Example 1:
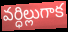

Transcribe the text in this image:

వర్ధిల్లుగాక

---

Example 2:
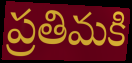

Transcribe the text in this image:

ప్రతిమకి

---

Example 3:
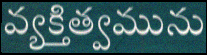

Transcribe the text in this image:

వ్యక్తిత్వమును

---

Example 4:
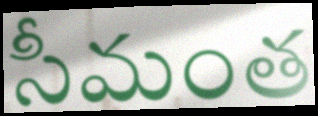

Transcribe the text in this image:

సీమంత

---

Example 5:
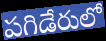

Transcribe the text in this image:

పగిడేరులో